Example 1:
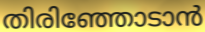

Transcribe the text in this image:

തിരിഞ്ഞോടാൻ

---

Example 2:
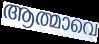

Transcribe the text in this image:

ആത്മാവെ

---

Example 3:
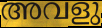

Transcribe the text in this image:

അവളു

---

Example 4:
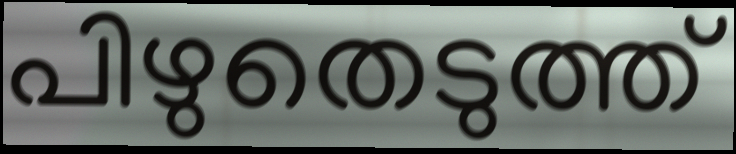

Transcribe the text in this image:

പിഴുതെടുത്ത്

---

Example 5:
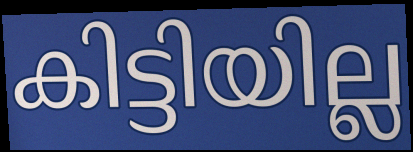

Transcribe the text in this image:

കിട്ടിയില്ല